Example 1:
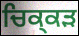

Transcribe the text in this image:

ਚਿਕ੍ਕੜ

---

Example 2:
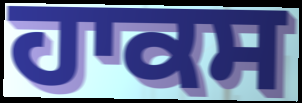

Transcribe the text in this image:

ਹਾਕਸ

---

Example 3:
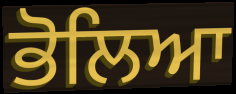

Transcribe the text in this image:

ਭੋਲਿਆ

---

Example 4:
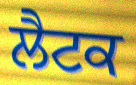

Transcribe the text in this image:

ਲੈਟਕ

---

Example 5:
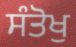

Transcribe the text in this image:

ਸੰਤੋਖੁ